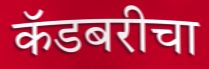
कॅडबरीचा